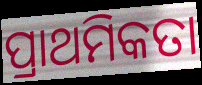
ପ୍ରାଥମିକତା